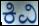
ಕಿವಿ